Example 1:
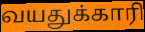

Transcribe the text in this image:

வயதுக்காரி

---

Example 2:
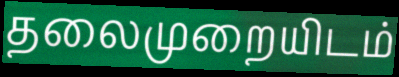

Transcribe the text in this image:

தலைமுறையிடம்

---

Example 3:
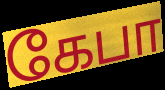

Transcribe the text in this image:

கேபா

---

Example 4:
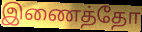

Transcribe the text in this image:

இணைத்தோ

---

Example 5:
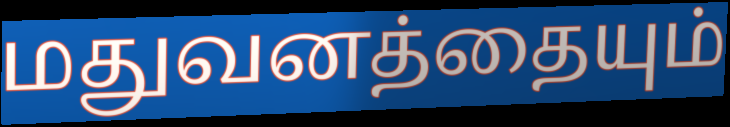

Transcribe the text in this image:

மதுவனத்தையும்